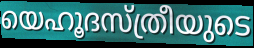
യെഹൂദസ്ത്രീയുടെ